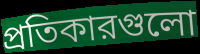
প্রতিকারগুলো